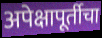
अपेक्षापूर्तीचा